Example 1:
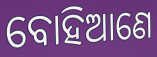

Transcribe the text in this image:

ବୋହିଆଣେ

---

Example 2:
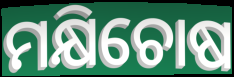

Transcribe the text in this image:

ମକ୍ଷିଚୋଷ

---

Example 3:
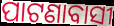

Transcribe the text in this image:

ପାଟଣାବାସୀ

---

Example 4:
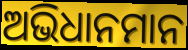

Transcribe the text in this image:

ଅଭିଧାନମାନ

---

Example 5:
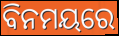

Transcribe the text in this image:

ବିନମୟରେ